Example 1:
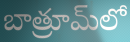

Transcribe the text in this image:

బాత్రూమ్‌లో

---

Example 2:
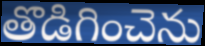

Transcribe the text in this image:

తొడిగించెను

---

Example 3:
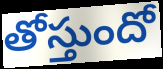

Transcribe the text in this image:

తోస్తుందో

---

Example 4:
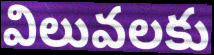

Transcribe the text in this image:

విలువలకు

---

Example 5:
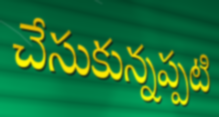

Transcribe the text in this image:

చేసుకున్నప్పటి